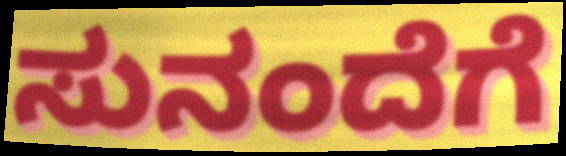
ಸುನಂದೆಗೆ